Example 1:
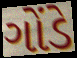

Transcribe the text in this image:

ગોંડે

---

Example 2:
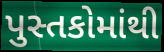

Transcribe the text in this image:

પુસ્તકોમાંથી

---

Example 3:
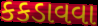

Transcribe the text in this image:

કકડાવવા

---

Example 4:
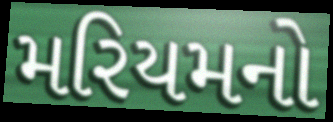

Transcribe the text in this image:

મરિયમનો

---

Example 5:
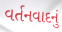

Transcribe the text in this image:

વર્તનવાદનું